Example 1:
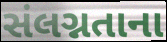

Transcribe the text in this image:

સંલગ્નતાના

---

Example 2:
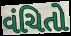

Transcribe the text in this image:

વંચિતો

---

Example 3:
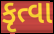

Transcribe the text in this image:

કૃત્વા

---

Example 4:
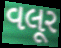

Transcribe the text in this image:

વલૂર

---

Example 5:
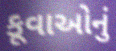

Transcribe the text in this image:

કૂવાઓનું